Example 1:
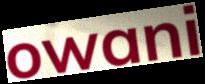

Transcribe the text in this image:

owani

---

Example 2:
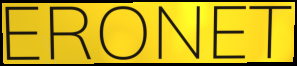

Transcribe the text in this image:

ERONET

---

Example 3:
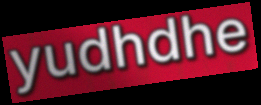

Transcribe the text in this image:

yudhdhe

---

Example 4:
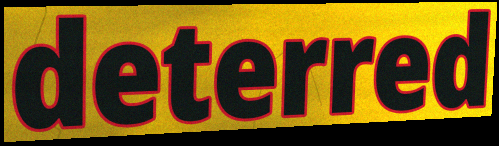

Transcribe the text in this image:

deterred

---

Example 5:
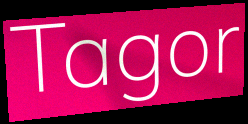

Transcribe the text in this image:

Tagor